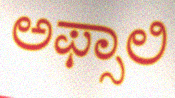
ಅಫ್ಸಾಲಿ